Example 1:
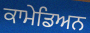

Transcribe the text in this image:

ਕਾਮੇਡਿਅਨ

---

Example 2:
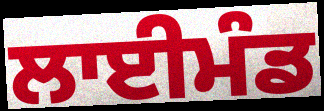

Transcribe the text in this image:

ਲਾਈਮੰਡ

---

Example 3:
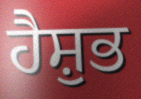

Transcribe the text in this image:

ਹੈਸ਼ੁਭ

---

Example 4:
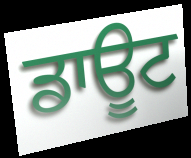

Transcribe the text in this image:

ਡਾਊਟ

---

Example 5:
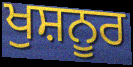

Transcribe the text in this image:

ਖੁਸ਼ਨੂਰ